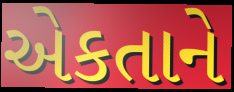
એકતાને